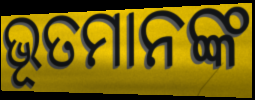
ଭୂତମାନଙ୍କ